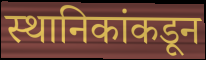
स्थानिकांकडून